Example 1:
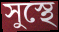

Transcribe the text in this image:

সুস্থে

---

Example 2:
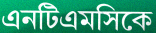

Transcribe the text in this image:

এনটিএমসিকে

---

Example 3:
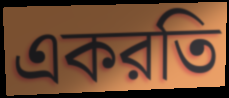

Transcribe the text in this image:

একরতি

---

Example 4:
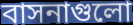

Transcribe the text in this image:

বাসনাগুলো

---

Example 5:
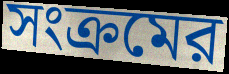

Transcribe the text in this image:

সংক্রমের